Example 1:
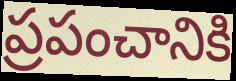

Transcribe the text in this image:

ప్రపంచానికి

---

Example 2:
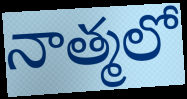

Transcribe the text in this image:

నాత్మలో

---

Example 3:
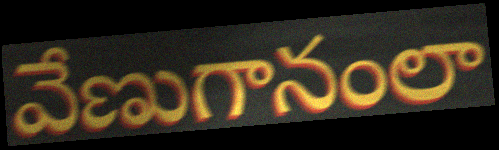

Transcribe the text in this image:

వేణుగానంలా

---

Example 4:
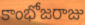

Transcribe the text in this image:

కాంభోజరాజు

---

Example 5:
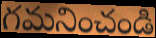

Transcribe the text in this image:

గమనించండి